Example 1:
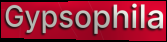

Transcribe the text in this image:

Gypsophila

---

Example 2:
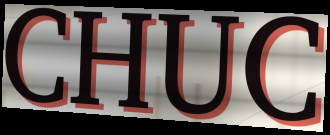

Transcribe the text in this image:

CHUC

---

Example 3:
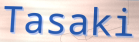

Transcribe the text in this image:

Tasaki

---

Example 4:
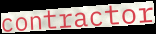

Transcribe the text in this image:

contractor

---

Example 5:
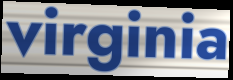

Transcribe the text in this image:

virginia